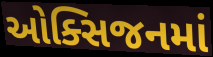
ઓક્સિજનમાં